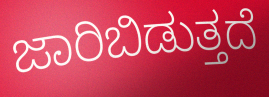
ಜಾರಿಬಿಡುತ್ತದೆ